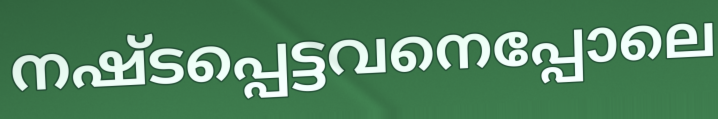
നഷ്ടപ്പെട്ടവനെപ്പോലെ